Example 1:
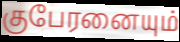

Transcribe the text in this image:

குபேரனையும்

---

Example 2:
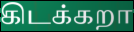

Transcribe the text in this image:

கிடக்கறா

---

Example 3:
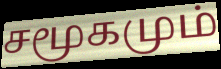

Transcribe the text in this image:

சமூகமும்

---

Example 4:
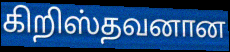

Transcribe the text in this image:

கிறிஸ்தவனான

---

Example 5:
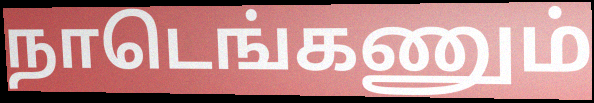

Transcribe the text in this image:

நாடெங்கணும்